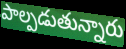
పాల్పడుతున్నారు